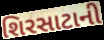
શિરસાટાની